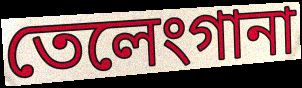
তেলেংগানা